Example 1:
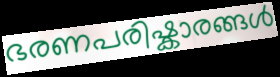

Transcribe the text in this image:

ഭരണപരിഷ്കാരങ്ങൾ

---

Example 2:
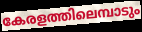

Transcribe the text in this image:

കേരളത്തിലെമ്പാടും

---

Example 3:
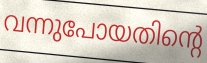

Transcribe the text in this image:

വന്നുപോയതിന്റെ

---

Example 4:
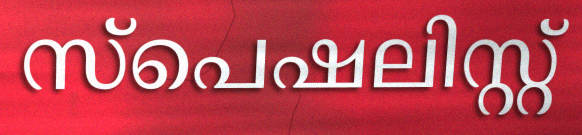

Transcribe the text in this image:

സ്പെഷലിസ്റ്റ്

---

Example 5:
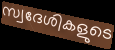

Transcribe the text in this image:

സ്വദേശികളുടെ